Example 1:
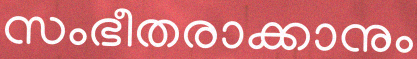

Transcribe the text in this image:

സംഭീതരാക്കാനും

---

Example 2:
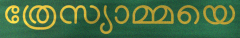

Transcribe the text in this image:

ത്രേസ്യാമ്മയെ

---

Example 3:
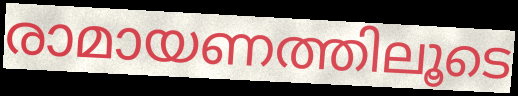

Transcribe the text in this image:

രാമായണത്തിലൂടെ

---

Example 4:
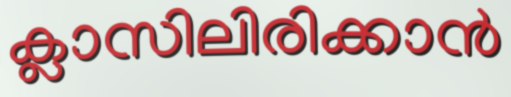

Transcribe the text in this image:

ക്ലാസിലിരിക്കാൻ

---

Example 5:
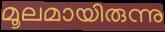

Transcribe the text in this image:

മൂലമായിരുന്നു